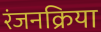
रंजनक्रिया